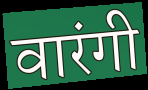
वारंगी